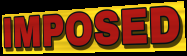
IMPOSED